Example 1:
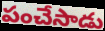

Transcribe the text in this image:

పంచేసాడు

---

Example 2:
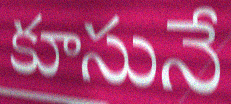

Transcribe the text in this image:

కూసునే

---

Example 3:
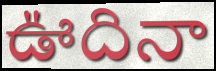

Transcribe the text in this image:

ఊదినా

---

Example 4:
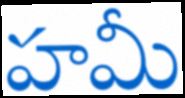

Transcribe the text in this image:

హమీ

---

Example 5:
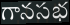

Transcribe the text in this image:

గానసభ